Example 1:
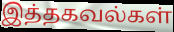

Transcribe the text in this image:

இத்தகவல்கள்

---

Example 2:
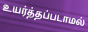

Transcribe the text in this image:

உயர்த்தப்படாமல்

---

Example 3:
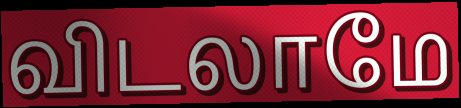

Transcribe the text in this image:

விடலாமே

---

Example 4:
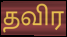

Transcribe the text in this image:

தவிர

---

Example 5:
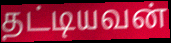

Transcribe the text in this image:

தட்டியவன்